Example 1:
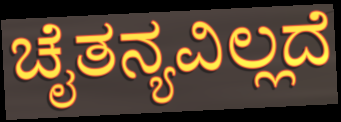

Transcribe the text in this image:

ಚೈತನ್ಯವಿಲ್ಲದೆ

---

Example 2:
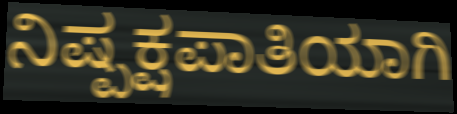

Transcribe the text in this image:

ನಿಷ್ಪಕ್ಷಪಾತಿಯಾಗಿ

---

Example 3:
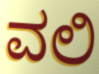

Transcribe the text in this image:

ವಲಿ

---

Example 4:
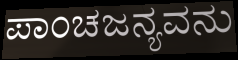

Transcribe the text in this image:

ಪಾಂಚಜನ್ಯವನು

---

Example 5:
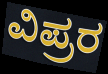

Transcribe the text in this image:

ವಿಪ್ರರ